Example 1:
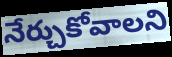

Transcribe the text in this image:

నేర్చుకోవాలని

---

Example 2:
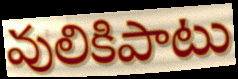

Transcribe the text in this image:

వులికిపాటు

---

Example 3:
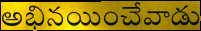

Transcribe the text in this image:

అభినయించేవాడు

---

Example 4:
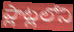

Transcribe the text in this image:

ప్లాట్లలోని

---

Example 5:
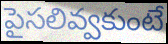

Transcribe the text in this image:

పైసలివ్వకుంటే